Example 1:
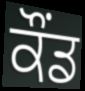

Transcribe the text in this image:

ਕੌਂਡ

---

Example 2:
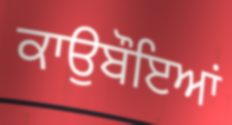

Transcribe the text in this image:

ਕਾਉਬੌਇਆਂ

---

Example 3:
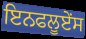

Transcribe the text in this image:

ਇਨਫਲੂਏਂਸ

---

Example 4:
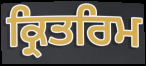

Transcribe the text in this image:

ਕ੍ਰਿਤਰਿਮ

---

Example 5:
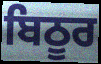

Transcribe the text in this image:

ਬਿਠੂਰ